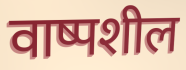
वाष्पशील